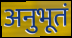
अनुभूतं